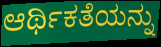
ಆರ್ಥಿಕತೆಯನ್ನು